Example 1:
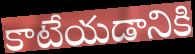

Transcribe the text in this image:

కాటేయడానికి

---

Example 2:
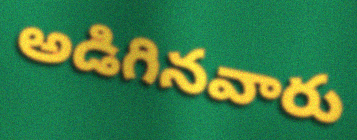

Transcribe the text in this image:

అడిగినవారు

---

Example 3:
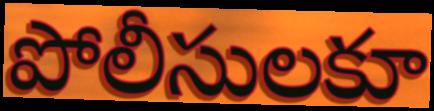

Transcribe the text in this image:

పోలీసులకూ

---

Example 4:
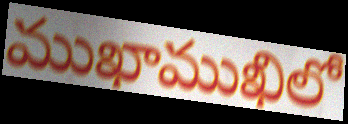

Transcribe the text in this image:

ముఖాముఖిలో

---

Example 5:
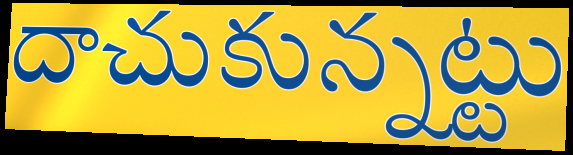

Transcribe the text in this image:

దాచుకున్నట్టు